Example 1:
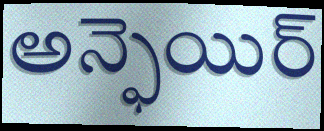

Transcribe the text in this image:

అన్ఫెయిర్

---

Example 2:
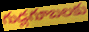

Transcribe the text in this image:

గుడ్లగూబలకు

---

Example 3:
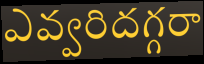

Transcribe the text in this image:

ఎవ్వరిదగ్గరా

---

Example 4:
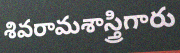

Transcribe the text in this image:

శివరామశాస్త్రిగారు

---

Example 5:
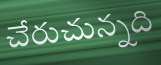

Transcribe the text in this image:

చేరుచున్నది